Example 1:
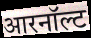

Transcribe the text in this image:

आरनॉल्ट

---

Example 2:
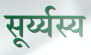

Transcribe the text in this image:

सूर्य्यस्य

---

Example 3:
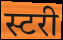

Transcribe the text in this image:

स्टरी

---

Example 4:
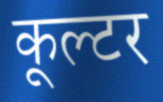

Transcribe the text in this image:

कूल्टर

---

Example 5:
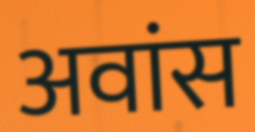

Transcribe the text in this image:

अवांस